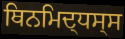
ਥਿਨਮਿਦ੍ਧਸ੍ਸ